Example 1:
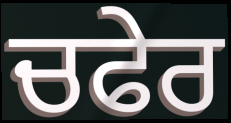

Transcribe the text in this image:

ਚਫੇਰ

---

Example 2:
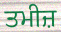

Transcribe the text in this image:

ਤਮੀਜ਼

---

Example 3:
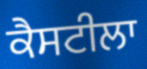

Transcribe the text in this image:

ਕੈਸਟੀਲਾ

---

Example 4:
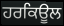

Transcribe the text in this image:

ਹਰਕਿਊਲ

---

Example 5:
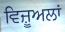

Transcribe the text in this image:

ਵਿਜ਼ੂਅਲਾਂ